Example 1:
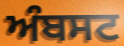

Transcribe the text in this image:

ਅੰਬਸਟ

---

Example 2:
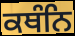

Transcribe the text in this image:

ਕਥੰਨਿ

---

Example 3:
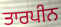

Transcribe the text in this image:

ਤਾਰਪੀਨ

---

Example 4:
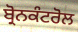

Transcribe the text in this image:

ਬ੍ਰੋਨਕੰਟਰੋਲ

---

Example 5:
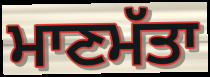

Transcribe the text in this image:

ਮਾਣਮੱਤਾ